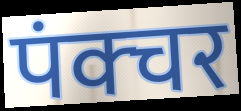
पंक्‍चर